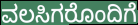
ವಲಸಿಗರೊಂದಿಗೆ